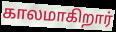
காலமாகிறார்